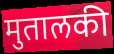
मुतालकी